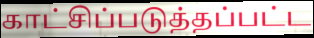
காட்சிப்படுத்தப்பட்ட